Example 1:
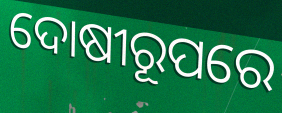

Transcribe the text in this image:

ଦୋଷୀରୂପରେ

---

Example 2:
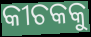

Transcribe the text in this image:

କୀଚକକୁ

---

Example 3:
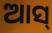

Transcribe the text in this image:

ଆସ୍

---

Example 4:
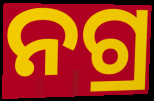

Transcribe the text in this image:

ନଗ୍ର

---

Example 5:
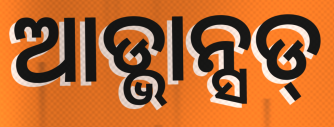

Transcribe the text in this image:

ଆଡ୍ଭାନ୍ସଡ୍